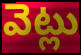
వెట్లు